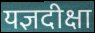
यज्ञदीक्षा